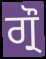
ਗ੍ਰੌ